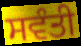
ਸਵੰਤੀ